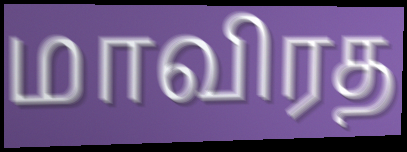
மாவிரத